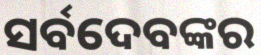
ସର୍ବଦେବଙ୍କର